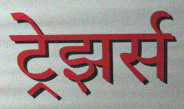
ट्रेझर्स